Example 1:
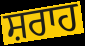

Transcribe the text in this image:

ਸ਼ਰਾਹ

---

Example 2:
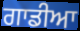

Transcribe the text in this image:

ਗਾਡੀਆ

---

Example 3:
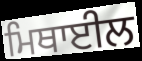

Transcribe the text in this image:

ਮਿਥਾਈਲ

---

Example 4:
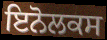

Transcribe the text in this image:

ਇਨੋਲਕਸ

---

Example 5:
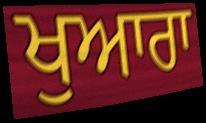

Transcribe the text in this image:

ਖੁਆਰਾ